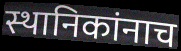
स्थानिकांनाच